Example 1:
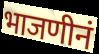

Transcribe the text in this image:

भाजणीनं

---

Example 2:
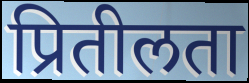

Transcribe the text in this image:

प्रितीलता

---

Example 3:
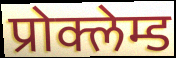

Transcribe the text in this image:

प्रोक्लेम्ड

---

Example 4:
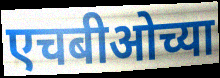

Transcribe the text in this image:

एचबीओच्या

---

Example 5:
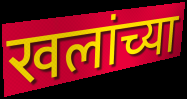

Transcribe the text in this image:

खलांच्या